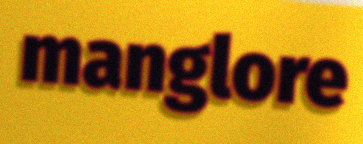
manglore